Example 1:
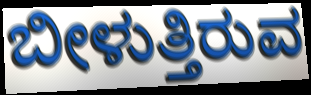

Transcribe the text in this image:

ಬೀಳುತ್ತಿರುವ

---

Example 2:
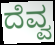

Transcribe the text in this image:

ದೆವ್ವ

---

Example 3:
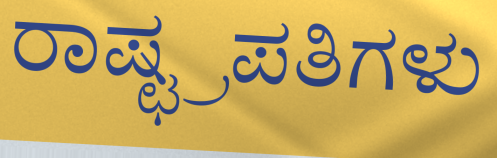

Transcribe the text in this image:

ರಾಷ್ಟ್ರಪತಿಗಳು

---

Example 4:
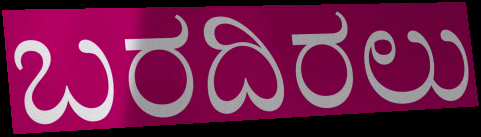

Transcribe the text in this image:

ಬರದಿರಲು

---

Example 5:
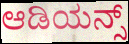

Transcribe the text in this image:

ಆಡಿಯನ್ಸ್